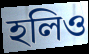
হলিও